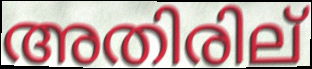
അതിരില്